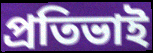
প্রতিভাই